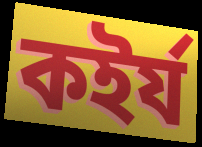
কইর্য